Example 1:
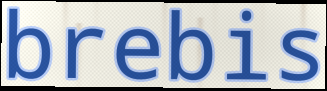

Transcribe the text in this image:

brebis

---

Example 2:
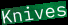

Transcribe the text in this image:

Knives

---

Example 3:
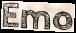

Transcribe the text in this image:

Emo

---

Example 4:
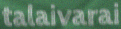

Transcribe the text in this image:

talaivarai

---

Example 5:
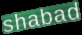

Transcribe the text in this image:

shabad